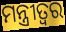
ମନ୍ତ୍ରୀତ୍ୱର